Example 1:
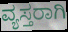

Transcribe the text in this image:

ವ್ಯಸ್ತರಾಗಿ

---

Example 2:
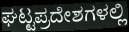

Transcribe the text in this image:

ಘಟ್ಟಪ್ರದೇಶಗಳಲ್ಲಿ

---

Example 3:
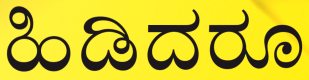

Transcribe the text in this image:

ಹಿಡಿದರೂ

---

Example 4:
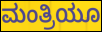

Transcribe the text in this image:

ಮಂತ್ರಿಯೂ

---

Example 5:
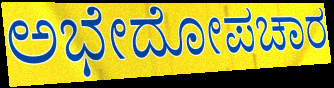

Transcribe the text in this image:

ಅಭೇದೋಪಚಾರ